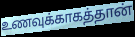
உணவுக்காகத்தான்